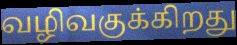
வழிவகுக்கிறது